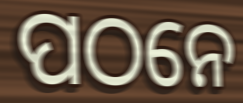
ପଠନେ